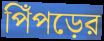
পিঁপড়ের